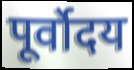
पूर्वोदय